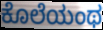
ಕೊಲೆಯಂಥ